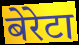
बेरेटा